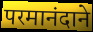
परमानंदाने